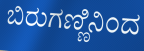
ಬಿರುಗಣ್ಣಿನಿಂದ